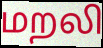
மறலி